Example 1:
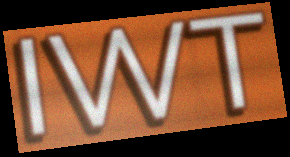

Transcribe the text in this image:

IWT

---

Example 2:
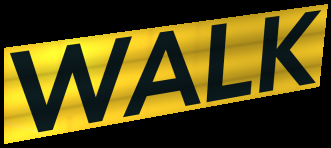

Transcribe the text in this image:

WALK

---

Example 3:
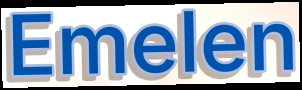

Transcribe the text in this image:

Emelen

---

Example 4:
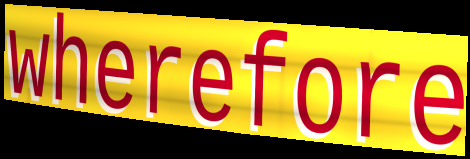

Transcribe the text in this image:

wherefore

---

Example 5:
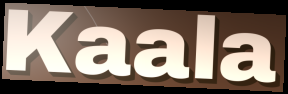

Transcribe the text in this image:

Kaala